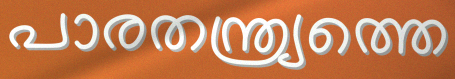
പാരതന്ത്ര്യത്തെ